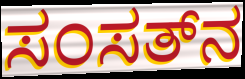
ಸಂಸತ್‌ನ